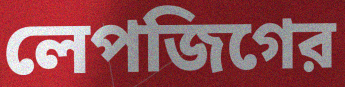
লেপজিগের